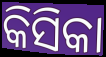
କିସିକା